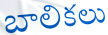
బాలికలు